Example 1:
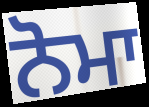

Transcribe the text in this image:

ਨੋਮਾ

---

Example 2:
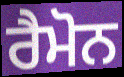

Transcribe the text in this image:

ਰੈਮੋਨ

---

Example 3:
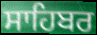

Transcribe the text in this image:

ਸਾਹਿਬਰ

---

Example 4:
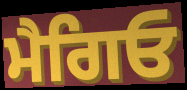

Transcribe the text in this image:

ਮੈਗਿਓ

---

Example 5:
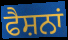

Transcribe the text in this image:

ਫੈਸ਼ਨਾਂ